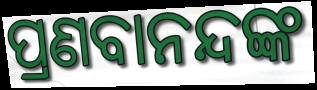
ପ୍ରଣବାନନ୍ଦଙ୍କ